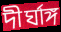
দীর্ঘাঙ্গ